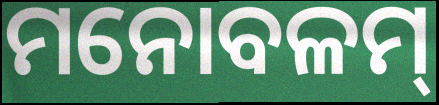
ମନୋବଳମ୍